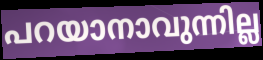
പറയാനാവുന്നില്ല